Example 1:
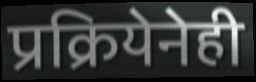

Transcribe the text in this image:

प्रक्रियेनेही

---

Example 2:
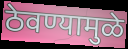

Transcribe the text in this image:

ठेवण्यामुळे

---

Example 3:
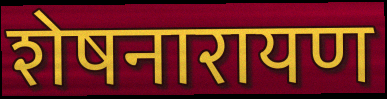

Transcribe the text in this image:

शेषनारायण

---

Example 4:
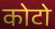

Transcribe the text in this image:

कोटो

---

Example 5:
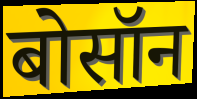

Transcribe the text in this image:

बोसॉन